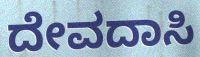
ದೇವದಾಸಿ